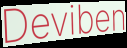
Deviben